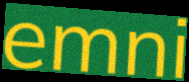
emni